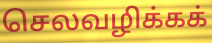
செலவழிக்கக்